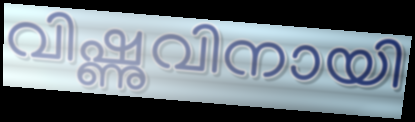
വിഷ്ണുവിനായി